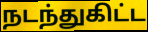
நடந்துகிட்ட